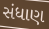
સંધાણ